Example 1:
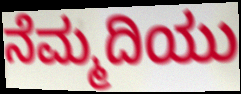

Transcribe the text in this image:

ನೆಮ್ಮದಿಯು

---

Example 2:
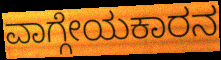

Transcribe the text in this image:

ವಾಗ್ಗೇಯಕಾರನ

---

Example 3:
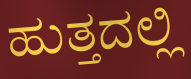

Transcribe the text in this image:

ಹುತ್ತದಲ್ಲಿ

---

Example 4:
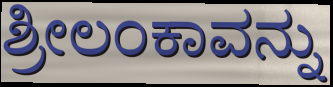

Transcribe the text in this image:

ಶ್ರೀಲಂಕಾವನ್ನು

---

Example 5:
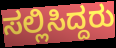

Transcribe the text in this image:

ಸಲ್ಲಿಸಿದ್ದರು